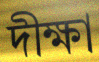
দীক্ষা